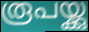
രൂപയ്ക്കു